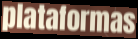
plataformas